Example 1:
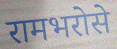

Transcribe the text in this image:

रामभरोसे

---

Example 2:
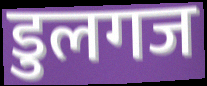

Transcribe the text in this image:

डुलगज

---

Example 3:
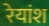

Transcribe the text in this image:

रेयांश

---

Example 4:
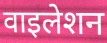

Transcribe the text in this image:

वाइलेशन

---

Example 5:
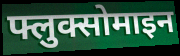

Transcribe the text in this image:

फ्लुक्सोमाइन